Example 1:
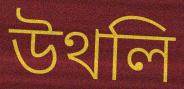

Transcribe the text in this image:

উথলি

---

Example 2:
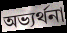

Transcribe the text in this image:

অভ্যৰ্থনা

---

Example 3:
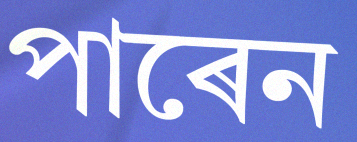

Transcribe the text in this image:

পাৰেন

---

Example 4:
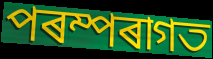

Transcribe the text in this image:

পৰম্পৰাগত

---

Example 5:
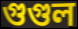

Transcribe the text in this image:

গুগুল